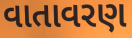
વાતાવરણ